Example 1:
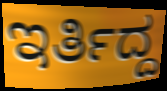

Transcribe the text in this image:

ಇರ್ತಿದ್ದ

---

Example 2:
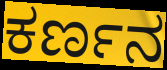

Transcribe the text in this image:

ಕರ್ಣನ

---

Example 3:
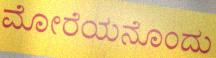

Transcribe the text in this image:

ಮೋರೆಯನೊಂದು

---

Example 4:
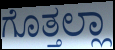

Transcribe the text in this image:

ಗೊತ್ತಲ್ಲಾ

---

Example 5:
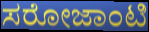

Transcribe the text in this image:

ಸರೋಜಾಂಟಿ